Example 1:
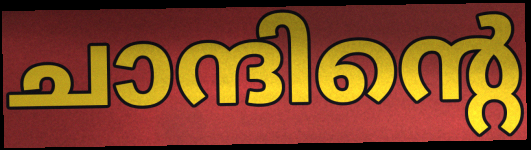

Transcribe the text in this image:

ചാന്ദിന്റെ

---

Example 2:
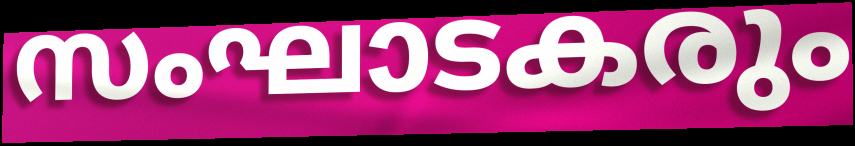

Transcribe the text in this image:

സംഘാടകരും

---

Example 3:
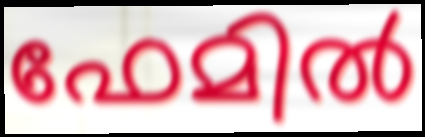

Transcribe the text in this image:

ഫേമിൽ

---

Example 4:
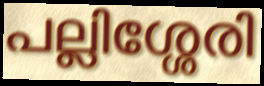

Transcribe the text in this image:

പല്ലിശ്ശേരി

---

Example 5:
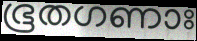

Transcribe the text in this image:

ഭൂതഗണാഃ